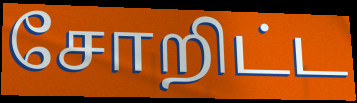
சோறிட்ட